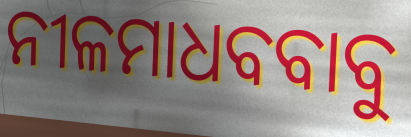
ନୀଳମାଧବବାବୁ